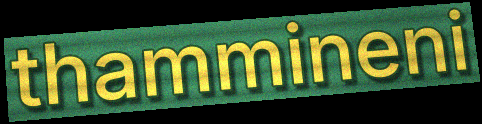
thammineni